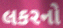
લકરનો